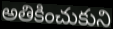
అతికించుకుని